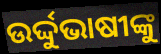
ଉର୍ଦ୍ଦୁଭାଷୀଙ୍କୁ